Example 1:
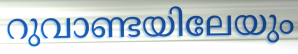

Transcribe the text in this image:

റുവാണ്ടയിലേയും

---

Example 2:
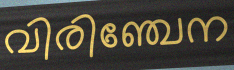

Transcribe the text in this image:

വിരിഞ്ചേന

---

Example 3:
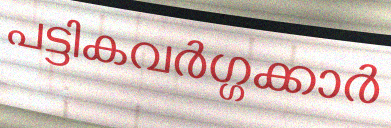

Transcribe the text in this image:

പട്ടികവർഗ്ഗക്കാർ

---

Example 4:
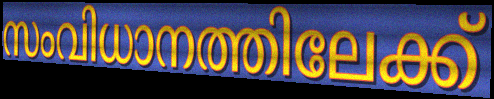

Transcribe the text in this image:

സംവിധാനത്തിലേക്ക്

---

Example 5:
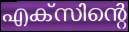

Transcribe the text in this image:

എക്‌സിന്റെ